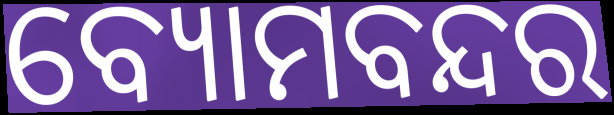
ବ୍ୟୋମବନ୍ଦର